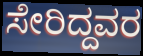
ಸೇರಿದ್ದವರ